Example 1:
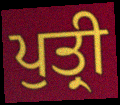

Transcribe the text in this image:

ਪੁਤ੍ਰੀ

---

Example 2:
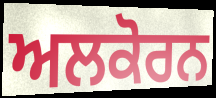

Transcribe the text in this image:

ਅਲਕੋਰਨ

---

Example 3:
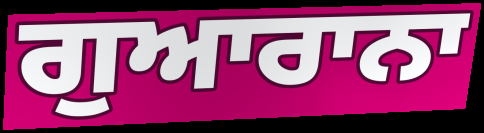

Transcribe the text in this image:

ਗੁਆਰਾਨਾ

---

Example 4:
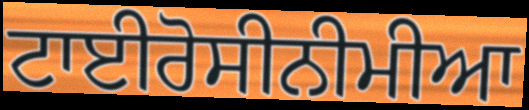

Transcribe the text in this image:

ਟਾਈਰੋਸੀਨੀਮੀਆ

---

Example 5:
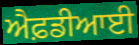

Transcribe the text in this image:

ਐਫ਼ਡੀਆਈ